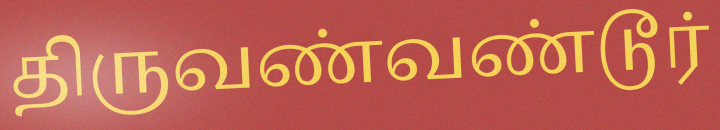
திருவண்வண்டூர்